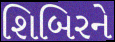
શિબિરને